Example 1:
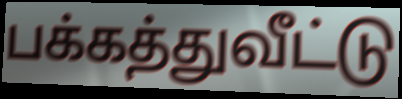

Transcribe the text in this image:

பக்கத்துவீட்டு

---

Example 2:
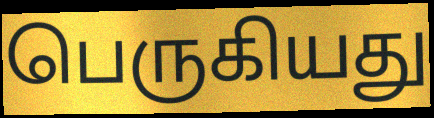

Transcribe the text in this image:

பெருகியது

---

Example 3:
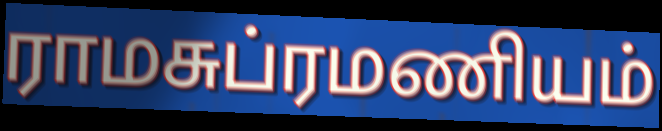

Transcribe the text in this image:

ராமசுப்ரமணியம்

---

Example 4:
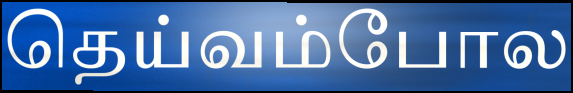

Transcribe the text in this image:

தெய்வம்போல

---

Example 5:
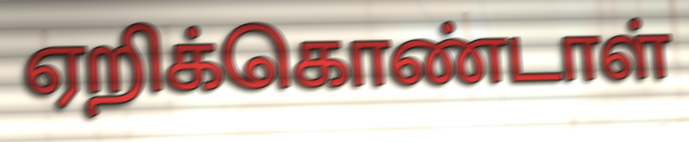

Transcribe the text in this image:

ஏறிக்கொண்டாள்